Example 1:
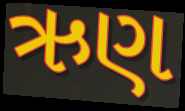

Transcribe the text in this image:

ઋણ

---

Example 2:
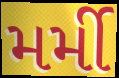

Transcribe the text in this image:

મર્મી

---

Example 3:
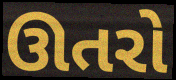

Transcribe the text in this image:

ઊતરો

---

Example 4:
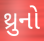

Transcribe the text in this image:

થ્રુનો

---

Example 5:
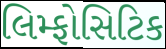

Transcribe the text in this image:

લિમ્ફોસિટિક